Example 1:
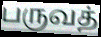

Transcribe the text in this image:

பருவத்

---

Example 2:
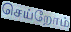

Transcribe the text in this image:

செய்றோம்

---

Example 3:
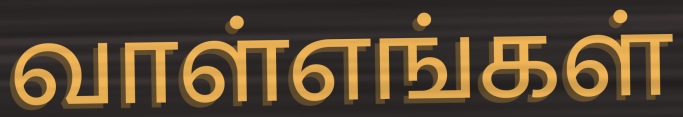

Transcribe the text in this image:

வாள்எங்கள்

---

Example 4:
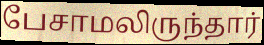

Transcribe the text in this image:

பேசாமலிருந்தார்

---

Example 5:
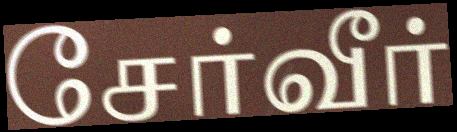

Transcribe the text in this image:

சேர்வீர்